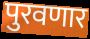
पुरवणार